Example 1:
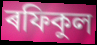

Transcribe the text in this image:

ৰফিকুল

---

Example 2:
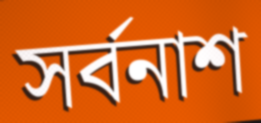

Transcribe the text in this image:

সৰ্বনাশ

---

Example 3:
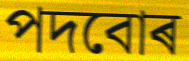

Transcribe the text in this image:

পদবোৰ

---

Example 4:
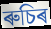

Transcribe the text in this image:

ৰুচিৰ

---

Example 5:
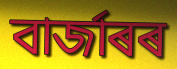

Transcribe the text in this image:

বাৰ্জাৰৰ